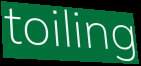
toiling